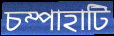
চম্পাহাটি